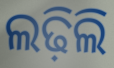
ଲଢ଼ିଲି